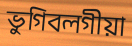
ভুগিবলগীয়া